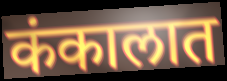
कंकालात